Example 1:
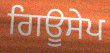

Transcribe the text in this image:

ਗਿਊਸੇਪ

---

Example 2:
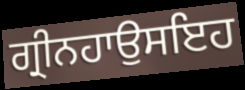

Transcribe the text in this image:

ਗ੍ਰੀਨਹਾਉਸਇਹ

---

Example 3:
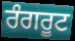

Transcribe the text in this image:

ਰੰਗਰੂਟ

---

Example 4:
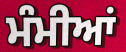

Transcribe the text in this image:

ਮੰਮੀਆਂ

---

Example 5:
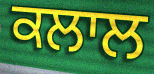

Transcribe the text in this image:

ਕਲਾਲ